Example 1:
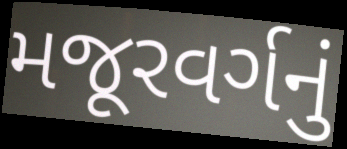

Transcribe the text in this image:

મજૂરવર્ગનું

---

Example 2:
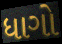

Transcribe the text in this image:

ધાગો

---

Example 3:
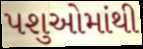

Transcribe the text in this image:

પશુઓમાંથી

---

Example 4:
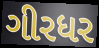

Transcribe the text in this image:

ગીરધર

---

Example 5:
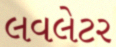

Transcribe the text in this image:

લવલેટર